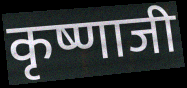
कृष्णाजी